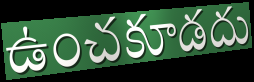
ఉంచకూడదు